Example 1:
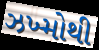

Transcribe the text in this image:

ઝખ્મોથી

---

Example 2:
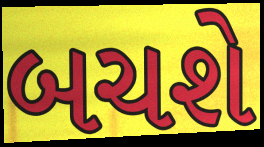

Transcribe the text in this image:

બચશે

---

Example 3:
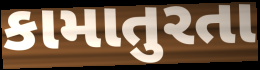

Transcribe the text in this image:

કામાતુરતા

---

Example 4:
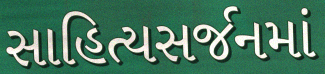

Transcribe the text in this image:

સાહિત્યસર્જનમાં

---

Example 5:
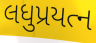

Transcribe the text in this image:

લધુપ્રયત્ન